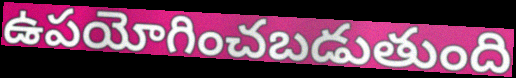
ఉపయోగించబడుతుంది